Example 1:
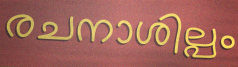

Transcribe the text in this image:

രചനാശില്പം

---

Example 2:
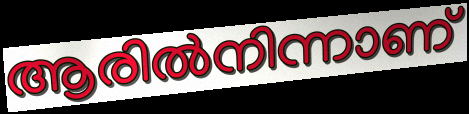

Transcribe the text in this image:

ആരിൽനിന്നാണ്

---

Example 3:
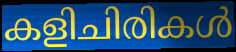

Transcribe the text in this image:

കളിചിരികൾ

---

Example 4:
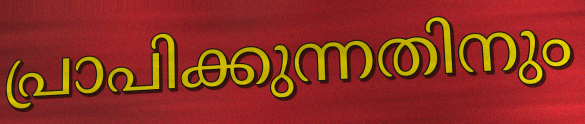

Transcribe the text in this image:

പ്രാപിക്കുന്നതിനും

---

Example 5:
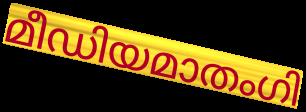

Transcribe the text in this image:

മീഡിയമാതംഗി